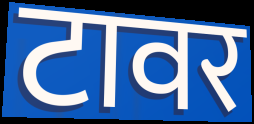
टावर